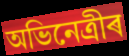
অভিনেত্ৰীৰ